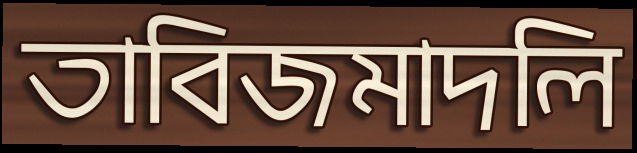
তাবিজমাদলি